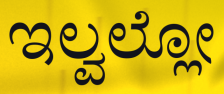
ಇಲ್ವಲ್ಲೋ